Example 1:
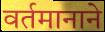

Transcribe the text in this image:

वर्तमानाने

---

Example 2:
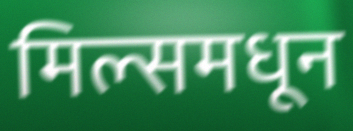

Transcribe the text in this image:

मिल्समधून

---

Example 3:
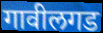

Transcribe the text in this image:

गावीलगड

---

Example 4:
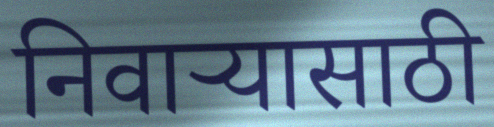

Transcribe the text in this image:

निवाऱ्यासाठी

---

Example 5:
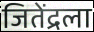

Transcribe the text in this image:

जितेंद्रला